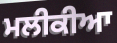
ਮਲੀਕੀਆ